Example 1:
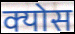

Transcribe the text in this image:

क्योस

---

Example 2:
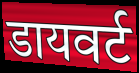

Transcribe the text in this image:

डायवर्ट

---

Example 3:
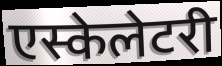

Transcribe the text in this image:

एस्केलेटरी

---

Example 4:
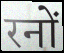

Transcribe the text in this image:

रनों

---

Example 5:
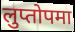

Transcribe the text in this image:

लुप्तोपमा